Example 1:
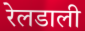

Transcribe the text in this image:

रेलडाली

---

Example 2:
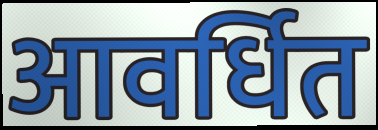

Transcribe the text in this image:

आवर्धित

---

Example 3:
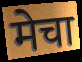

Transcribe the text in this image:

मेचा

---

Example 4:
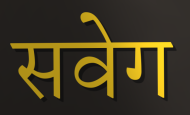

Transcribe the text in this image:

सवेग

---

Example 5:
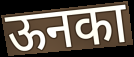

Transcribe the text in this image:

ऊनका